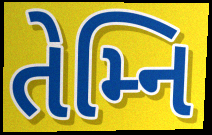
તેમ્નિ